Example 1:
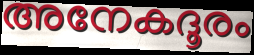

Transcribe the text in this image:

അനേകദൂരം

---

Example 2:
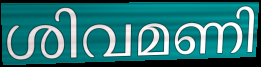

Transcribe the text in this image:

ശിവമണി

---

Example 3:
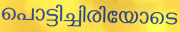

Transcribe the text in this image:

പൊട്ടിച്ചിരിയോടെ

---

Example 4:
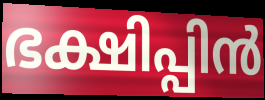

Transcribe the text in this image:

ഭക്ഷിപ്പിൻ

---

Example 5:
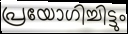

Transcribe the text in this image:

പ്രയോഗിച്ചിട്ടും